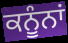
ਕਨੂੰਨਾਂ